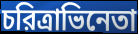
চরিত্রাভিনেতা